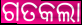
ଗତକଲା